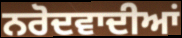
ਨਰੋਦਵਾਦੀਆਂ